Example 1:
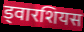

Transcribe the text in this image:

ड्वारशियस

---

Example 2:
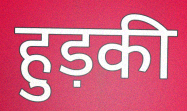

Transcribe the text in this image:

हुड़की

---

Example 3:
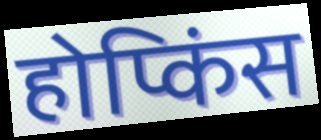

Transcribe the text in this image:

होप्किंस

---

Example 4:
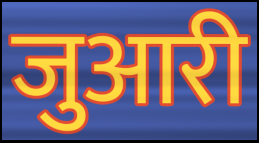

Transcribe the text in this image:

जुआरी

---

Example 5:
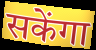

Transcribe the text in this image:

सकेंगा